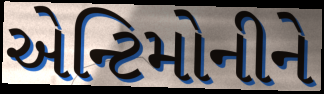
એન્ટિમોનીને